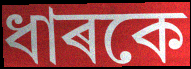
ধাৰকে